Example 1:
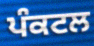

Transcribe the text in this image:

ਪੰਕਟਲ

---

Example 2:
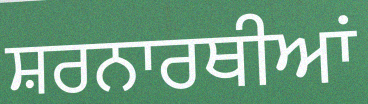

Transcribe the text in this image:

ਸ਼ਰਨਾਰਥੀਆਂ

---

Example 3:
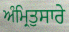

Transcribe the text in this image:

ਅੰਮ੍ਰਿਤੁਸਾਰੇ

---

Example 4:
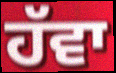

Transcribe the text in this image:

ਹੱਵਾ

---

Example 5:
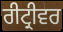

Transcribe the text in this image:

ਰੀਟ੍ਰੀਵਰ